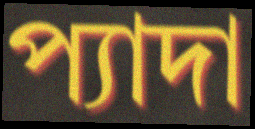
প্যাদা